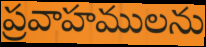
ప్రవాహములను